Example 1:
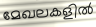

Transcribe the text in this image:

മേഖലകളിൽ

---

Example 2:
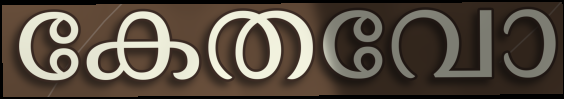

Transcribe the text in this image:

കേതവോ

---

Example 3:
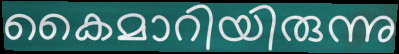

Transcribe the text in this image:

കൈമാറിയിരുന്നു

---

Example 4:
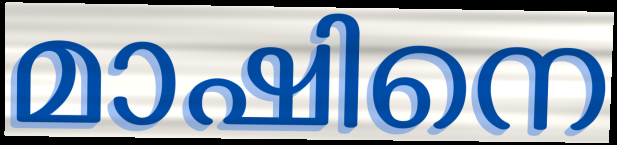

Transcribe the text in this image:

മാഷിനെ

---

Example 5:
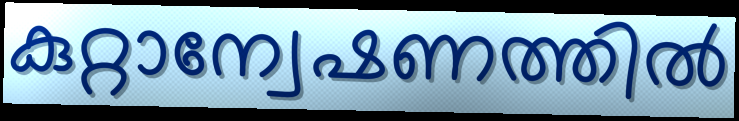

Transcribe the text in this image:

കുറ്റാന്വേഷണത്തിൽ